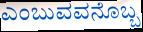
ಎಂಬುವವನೊಬ್ಬ